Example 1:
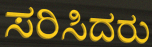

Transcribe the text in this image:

ಸರಿಸಿದರು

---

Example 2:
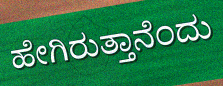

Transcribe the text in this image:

ಹೇಗಿರುತ್ತಾನೆಂದು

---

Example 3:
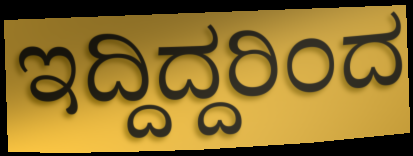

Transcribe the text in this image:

ಇದ್ದಿದ್ದರಿಂದ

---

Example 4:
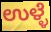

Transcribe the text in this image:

ಉಳ್ಳೆ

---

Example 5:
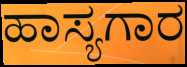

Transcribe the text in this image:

ಹಾಸ್ಯಗಾರ